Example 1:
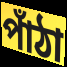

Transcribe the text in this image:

পাঁঠা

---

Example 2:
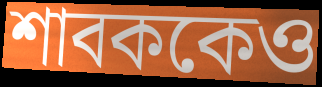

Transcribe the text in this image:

শাবককেও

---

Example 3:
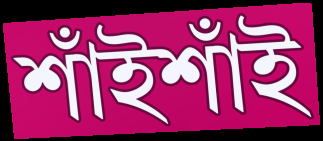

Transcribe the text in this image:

শাঁইশাঁই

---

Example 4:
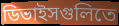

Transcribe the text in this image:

ডিভাইসগুলিতে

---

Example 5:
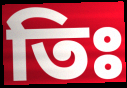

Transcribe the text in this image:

তিঃ